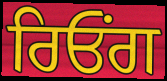
ਰਿਓਂਗ